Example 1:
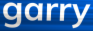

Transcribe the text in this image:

garry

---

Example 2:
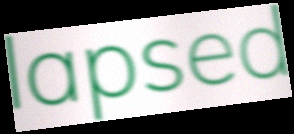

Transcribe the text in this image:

lapsed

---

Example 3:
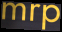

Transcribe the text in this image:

mrp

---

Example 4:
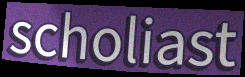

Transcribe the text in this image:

scholiast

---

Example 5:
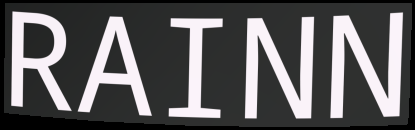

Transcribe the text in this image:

RAINN